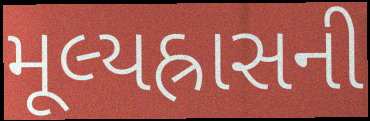
મૂલ્યહ્રાસની